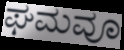
ಘಮವೂ